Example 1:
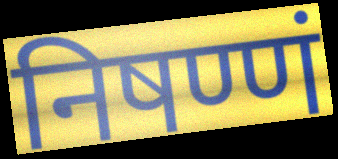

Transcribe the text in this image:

निषण्णं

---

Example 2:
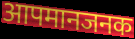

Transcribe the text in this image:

आपमानजनक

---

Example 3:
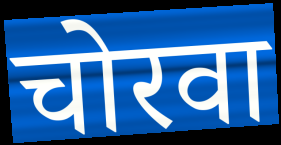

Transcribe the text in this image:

चोरवा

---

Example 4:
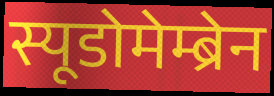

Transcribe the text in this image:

स्यूडोमेम्ब्रेन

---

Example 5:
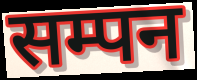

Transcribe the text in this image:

सम्पन